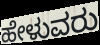
ಹೇಳುವರು